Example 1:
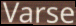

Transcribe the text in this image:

Varse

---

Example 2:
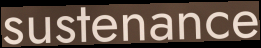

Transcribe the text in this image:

sustenance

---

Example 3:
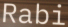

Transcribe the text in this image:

Rabi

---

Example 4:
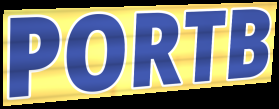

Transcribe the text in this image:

PORTB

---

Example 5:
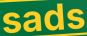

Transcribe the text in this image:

sads